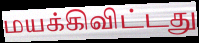
மயக்கிவிட்டது